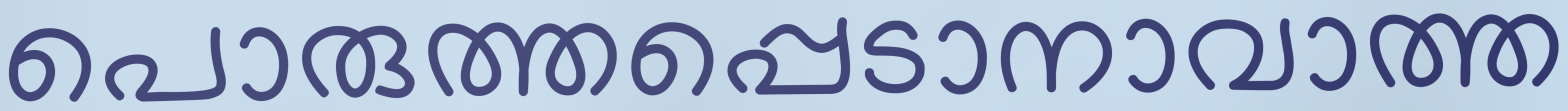
പൊരുത്തപ്പെടാനാവാത്ത